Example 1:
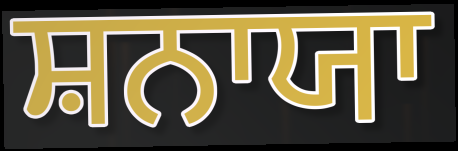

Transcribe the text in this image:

ਸ਼ਨਾਯਾ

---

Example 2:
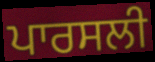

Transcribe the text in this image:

ਪਾਰਸਲੀ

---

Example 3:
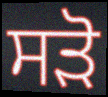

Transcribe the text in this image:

ਸੜੋ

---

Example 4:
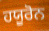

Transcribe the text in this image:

ਹਯੂਰੋਨ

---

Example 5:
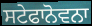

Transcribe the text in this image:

ਸਟੇਫਾਨੋਵਨਾ